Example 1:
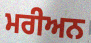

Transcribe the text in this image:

ਮਰੀਅਨ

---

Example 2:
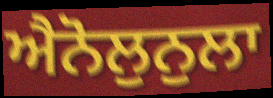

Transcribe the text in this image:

ਐਨੋਲੁਨੁਲਾ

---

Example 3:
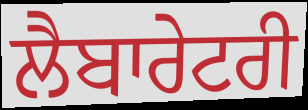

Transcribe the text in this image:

ਲੈਬਾਰੇਟਰੀ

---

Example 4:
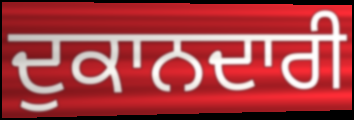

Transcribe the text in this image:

ਦੁਕਾਨਦਾਰੀ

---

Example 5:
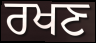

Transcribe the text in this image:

ਰਖਣ